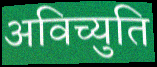
अविच्युति